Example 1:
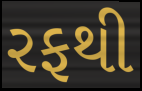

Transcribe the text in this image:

રફથી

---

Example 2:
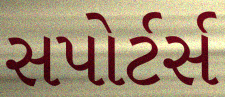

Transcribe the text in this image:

સપોર્ટર્સ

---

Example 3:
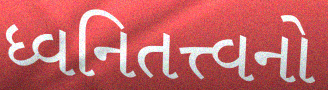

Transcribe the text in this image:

ધ્વનિતત્ત્વનો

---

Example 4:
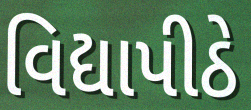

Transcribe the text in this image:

વિદ્યાપીઠે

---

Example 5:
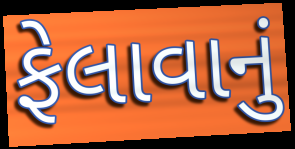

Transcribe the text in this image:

ફેલાવાનું